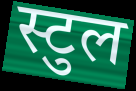
स्टुल